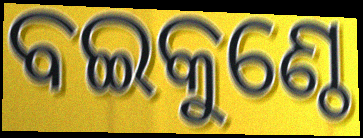
ବଇକୁଣ୍ଠେ